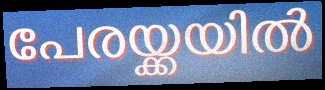
പേരയ്ക്കയിൽ